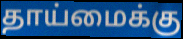
தாய்மைக்கு